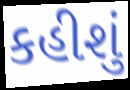
કહીશું